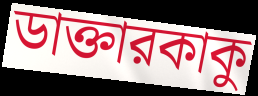
ডাক্তারকাকু